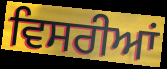
ਵਿਸਰੀਆਂ